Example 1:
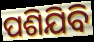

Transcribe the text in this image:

ପଶିଯିବି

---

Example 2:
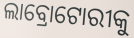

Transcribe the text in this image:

ଲାବ୍ରୋଟୋରୀକୁ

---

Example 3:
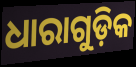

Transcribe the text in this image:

ଧାରାଗୁଡ଼ିକ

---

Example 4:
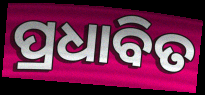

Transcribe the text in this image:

ପ୍ରଧାବିତ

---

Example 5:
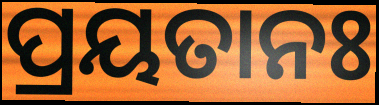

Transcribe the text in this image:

ପ୍ରୟତାନଃ